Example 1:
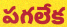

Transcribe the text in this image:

పగలేక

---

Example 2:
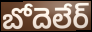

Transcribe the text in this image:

బోదెలేర్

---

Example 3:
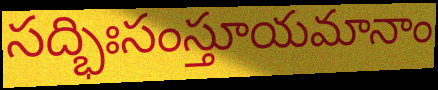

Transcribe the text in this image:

సద్భిఃసంస్తూయమానాం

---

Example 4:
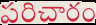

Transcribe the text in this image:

పరిచారం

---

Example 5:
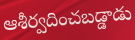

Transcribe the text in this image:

ఆశీర్వదించబడ్డాడు